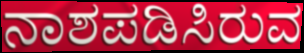
ನಾಶಪಡಿಸಿರುವ